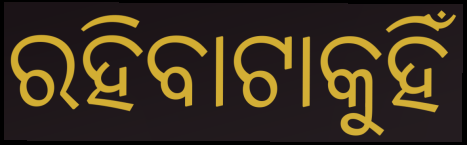
ରହିବାଟାକୁହିଁ